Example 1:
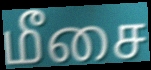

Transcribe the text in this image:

மீசை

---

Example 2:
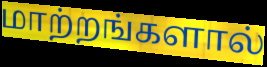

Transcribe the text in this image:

மாற்றங்களால்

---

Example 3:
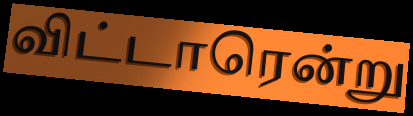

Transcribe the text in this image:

விட்டாரென்று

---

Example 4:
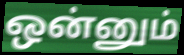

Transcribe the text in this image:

ஒன்னும்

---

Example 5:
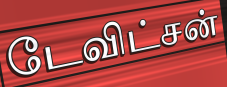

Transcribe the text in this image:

டேவிட்சன்